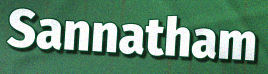
Sannatham